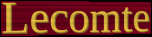
Lecomte